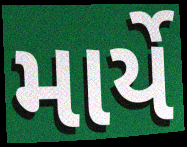
માર્યે